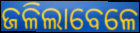
ଜଳିଲାବେଳେ